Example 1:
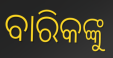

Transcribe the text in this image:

ବାରିକଙ୍କୁ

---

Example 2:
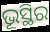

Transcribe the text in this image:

ଭୂସ୍ଥିର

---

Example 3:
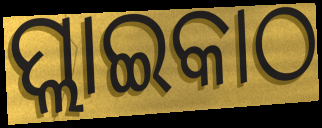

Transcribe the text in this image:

ପ୍ଲାଇକାଠ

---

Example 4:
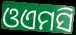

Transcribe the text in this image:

ଓଏମସି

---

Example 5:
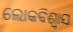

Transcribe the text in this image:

ଲୋକବିଶ୍ୱାସ